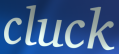
cluck